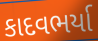
કાદવભર્યા